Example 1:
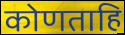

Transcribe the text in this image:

कोणताहि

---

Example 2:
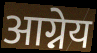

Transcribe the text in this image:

आग्नेय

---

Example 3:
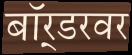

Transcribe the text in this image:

बॉर्डरवर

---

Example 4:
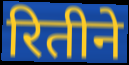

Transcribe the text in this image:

रितीने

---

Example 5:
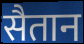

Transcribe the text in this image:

सैतान